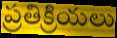
ప్రతిక్రియలు